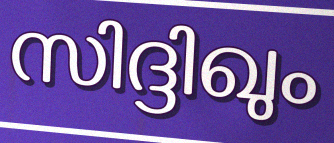
സിദ്ദിഖും